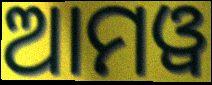
ଆମୱ